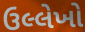
ઉલ્લેખો